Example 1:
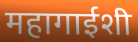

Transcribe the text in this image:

महागाईशी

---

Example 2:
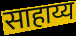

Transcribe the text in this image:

साहाय्य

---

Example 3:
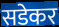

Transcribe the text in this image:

सडेकर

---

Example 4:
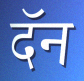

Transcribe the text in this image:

दॅन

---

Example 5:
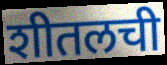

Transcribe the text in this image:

शीतलची